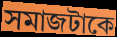
সমাজটাকে